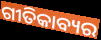
ଗୀତିକାବ୍ୟର